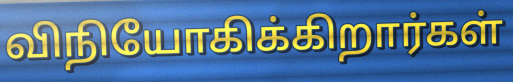
விநியோகிக்கிறார்கள்